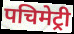
पचिमेट्री